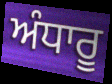
ਅੰਧਾਰੂ